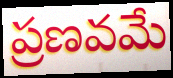
ప్రణవమే